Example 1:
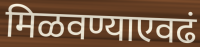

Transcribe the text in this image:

मिळवण्याएवढं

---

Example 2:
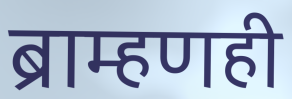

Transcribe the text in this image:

ब्राम्हणही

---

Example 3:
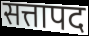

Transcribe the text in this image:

सत्तापद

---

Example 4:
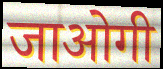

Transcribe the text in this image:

जाओगी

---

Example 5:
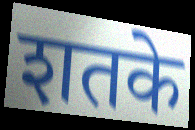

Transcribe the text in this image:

शतके